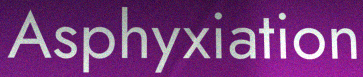
Asphyxiation